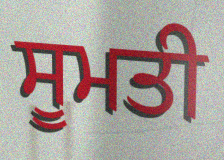
ਸੂਮਤੀ